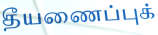
தீயணைப்புக்